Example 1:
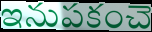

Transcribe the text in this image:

ఇనుపకంచె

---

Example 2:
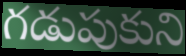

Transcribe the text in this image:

గడుపుకుని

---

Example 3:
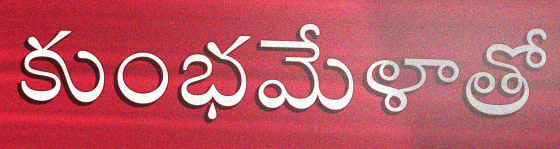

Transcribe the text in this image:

కుంభమేళాతో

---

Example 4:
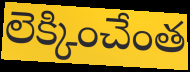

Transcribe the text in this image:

లెక్కించేంత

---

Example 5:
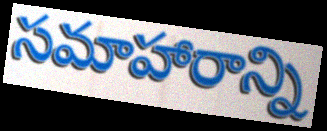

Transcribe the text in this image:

సమాహారాన్ని